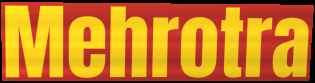
Mehrotra